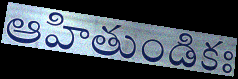
ఆహితుండికః